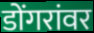
डोंगरांवर